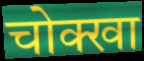
चोक्खा